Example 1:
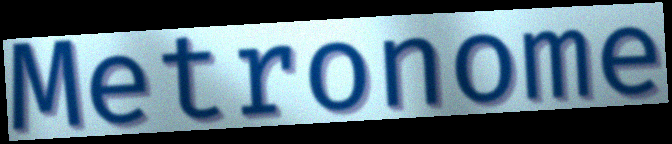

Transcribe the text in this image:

Metronome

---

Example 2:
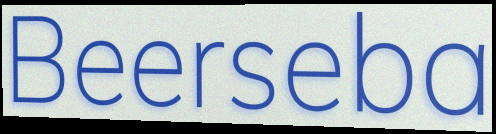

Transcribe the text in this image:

Beerseba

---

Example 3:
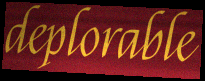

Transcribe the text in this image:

deplorable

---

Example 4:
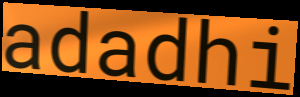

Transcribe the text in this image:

adadhi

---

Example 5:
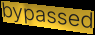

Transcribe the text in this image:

bypassed